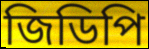
জিডিপি